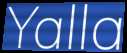
Yalla